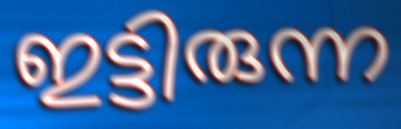
ഇട്ടിരുന്ന